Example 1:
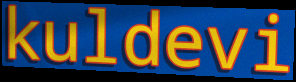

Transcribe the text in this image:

kuldevi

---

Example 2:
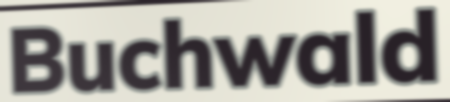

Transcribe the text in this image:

Buchwald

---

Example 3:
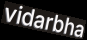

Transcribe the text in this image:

vidarbha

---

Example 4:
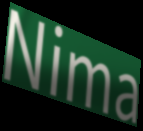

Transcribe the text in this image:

Nima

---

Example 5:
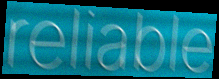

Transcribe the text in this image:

reliable